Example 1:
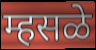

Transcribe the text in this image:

म्हसळे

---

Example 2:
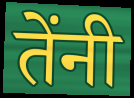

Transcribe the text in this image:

तेंनी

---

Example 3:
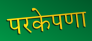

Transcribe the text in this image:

परकेपणा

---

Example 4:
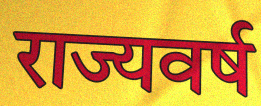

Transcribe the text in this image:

राज्यवर्ष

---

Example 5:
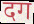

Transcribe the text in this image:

दग